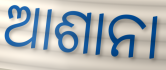
ଆଶାନା